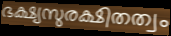
ഭക്ഷ്യസുരക്ഷിതത്വം